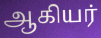
ஆகியர்